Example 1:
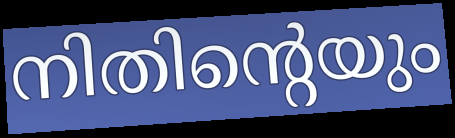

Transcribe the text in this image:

നിതിന്റെയും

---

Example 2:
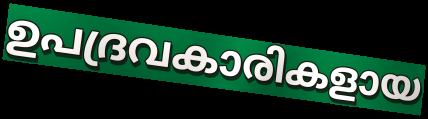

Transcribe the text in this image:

ഉപദ്രവകാരികളായ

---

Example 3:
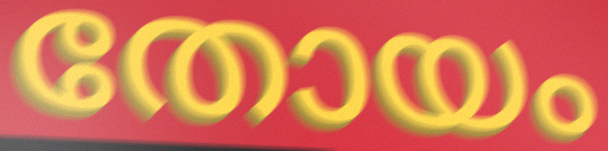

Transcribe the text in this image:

തോയം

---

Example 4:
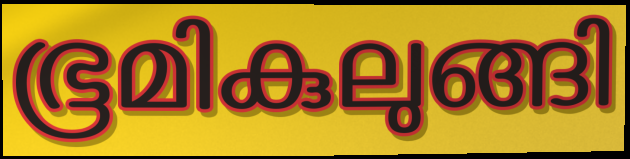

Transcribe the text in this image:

ഭൂമികുലുങ്ങി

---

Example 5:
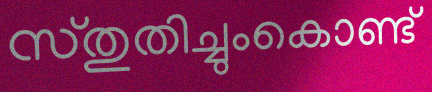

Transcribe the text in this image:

സ്തുതിച്ചുംകൊണ്ട്